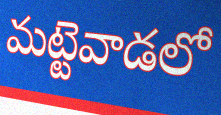
మట్టెవాడలో